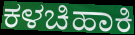
ಕಳಚಿಹಾಕಿ